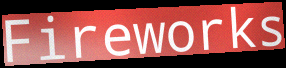
Fireworks